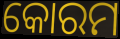
କୋରମ